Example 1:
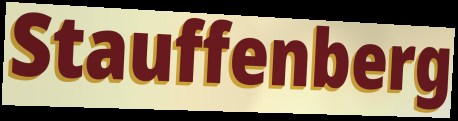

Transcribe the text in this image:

Stauffenberg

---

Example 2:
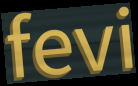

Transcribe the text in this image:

fevi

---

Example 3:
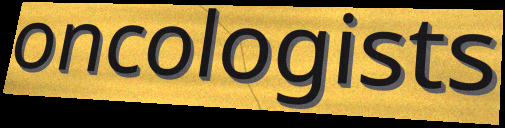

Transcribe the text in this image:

oncologists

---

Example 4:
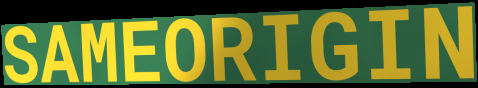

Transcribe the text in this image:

SAMEORIGIN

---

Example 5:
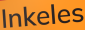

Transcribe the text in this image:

Inkeles